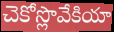
చెకోస్లొవేకియా